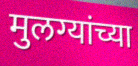
मुलग्यांच्या